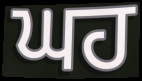
ਘਹ